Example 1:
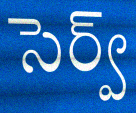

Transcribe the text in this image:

సెర్వ్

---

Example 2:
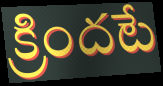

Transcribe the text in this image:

క్రిందటే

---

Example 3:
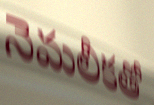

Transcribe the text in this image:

నెమలీకతో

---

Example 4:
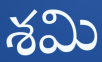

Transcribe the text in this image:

శమి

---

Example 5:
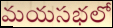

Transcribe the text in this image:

మయసభలో